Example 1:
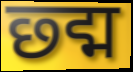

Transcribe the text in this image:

छ्द्म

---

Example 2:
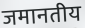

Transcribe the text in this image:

जमानतीय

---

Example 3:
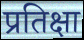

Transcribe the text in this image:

प्रतिक्षा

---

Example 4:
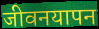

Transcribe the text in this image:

जीवनयापन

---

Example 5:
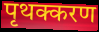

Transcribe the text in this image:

पृथक्करण